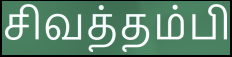
சிவத்தம்பி